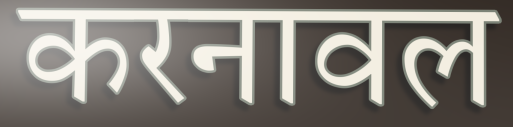
करनावल